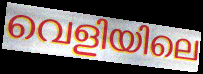
വെളിയിലെ